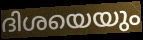
ദിശയെയും